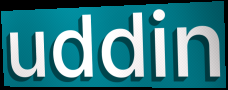
uddin